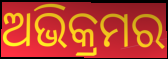
ଅଭିକ୍ରମର